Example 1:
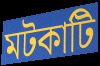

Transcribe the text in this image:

মটকাটি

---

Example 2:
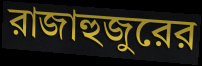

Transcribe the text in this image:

রাজাহুজুরের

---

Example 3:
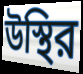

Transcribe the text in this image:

উস্থির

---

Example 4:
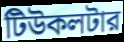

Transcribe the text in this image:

টিউকলটার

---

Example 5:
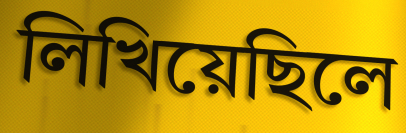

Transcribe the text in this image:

লিখিয়েছিলে